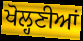
ਖੋਲ੍ਹਣੀਆਂ